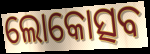
ଲୋକୋତ୍ସବ